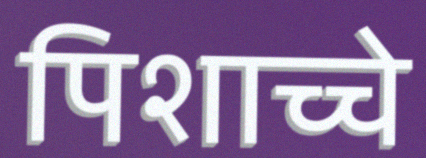
पिशाच्चे